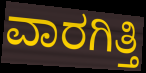
ವಾರಗಿತ್ತಿ